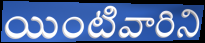
యింటివారిని